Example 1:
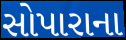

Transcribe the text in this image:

સોપારાના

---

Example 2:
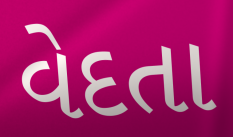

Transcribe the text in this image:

વેદતા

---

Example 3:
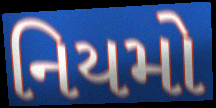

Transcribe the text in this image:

નિયમો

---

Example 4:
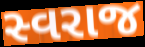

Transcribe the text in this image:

સ્વરાજ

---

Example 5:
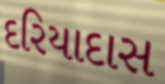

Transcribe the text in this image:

દરિયાદાસ